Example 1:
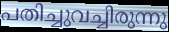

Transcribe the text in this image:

പതിച്ചുവച്ചിരുന്നു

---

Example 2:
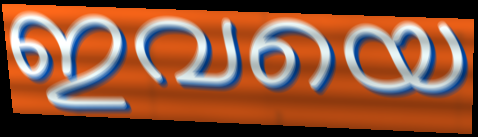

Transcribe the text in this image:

ഇവയെ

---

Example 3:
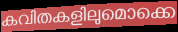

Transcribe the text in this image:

കവിതകളിലുമൊക്കെ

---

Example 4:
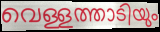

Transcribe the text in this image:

വെള്ളത്താടിയും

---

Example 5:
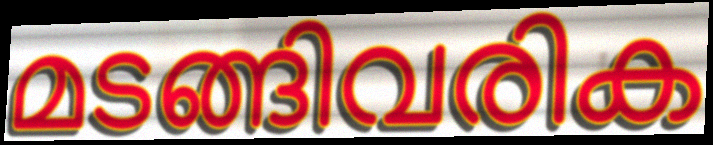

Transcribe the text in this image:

മടങ്ങിവരിക